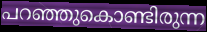
പറഞ്ഞുകൊണ്ടിരുന്ന